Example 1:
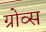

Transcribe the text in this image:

ग्रोव्स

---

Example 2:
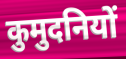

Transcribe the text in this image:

कुमुदनियों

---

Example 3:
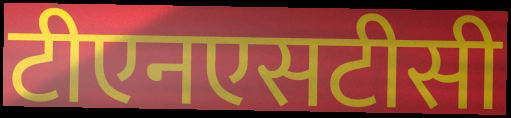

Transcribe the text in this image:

टीएनएसटीसी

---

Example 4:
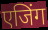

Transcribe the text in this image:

एजिंग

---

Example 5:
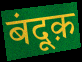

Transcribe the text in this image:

बंदूक़